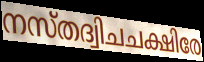
നസ്തദ്വിചചക്ഷിരേ